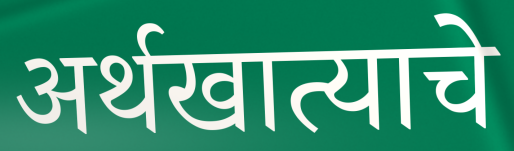
अर्थखात्याचे